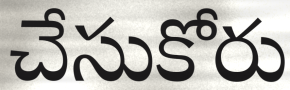
చేసుకోరు